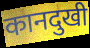
कानदुखी